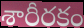
శారీరకం